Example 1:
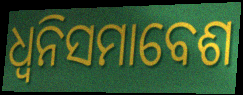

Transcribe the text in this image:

ଧ୍ୱନିସମାବେଶ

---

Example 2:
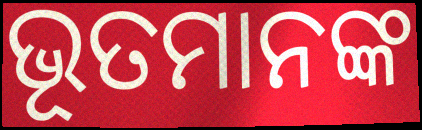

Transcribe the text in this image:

ଭୂତମାନଙ୍କ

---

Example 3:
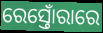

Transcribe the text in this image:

ରେସ୍ତୋଁରାରେ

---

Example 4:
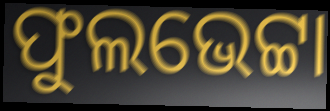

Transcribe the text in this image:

ଫୁଲଭେଟ୍ଟା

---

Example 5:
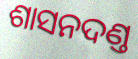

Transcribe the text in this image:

ଶାସନଦଣ୍ତ